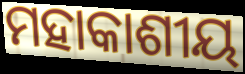
ମହାକାଶୀୟ